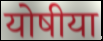
योषीया